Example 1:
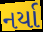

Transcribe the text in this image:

નર્યા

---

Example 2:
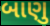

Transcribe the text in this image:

બાણુ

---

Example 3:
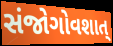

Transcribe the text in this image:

સંજોગોવશાત્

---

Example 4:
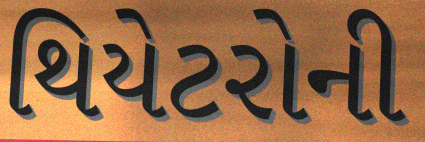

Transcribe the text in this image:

થિયેટરોની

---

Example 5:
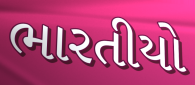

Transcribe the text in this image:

ભારતીયો